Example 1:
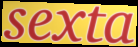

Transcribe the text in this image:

sexta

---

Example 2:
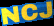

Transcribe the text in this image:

NCJ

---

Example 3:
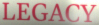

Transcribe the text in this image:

LEGACY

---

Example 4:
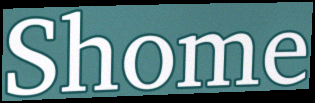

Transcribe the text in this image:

Shome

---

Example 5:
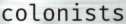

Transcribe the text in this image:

colonists